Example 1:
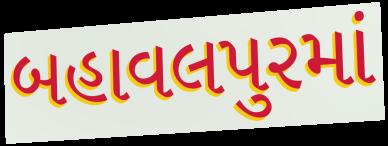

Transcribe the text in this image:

બહાવલપુરમાં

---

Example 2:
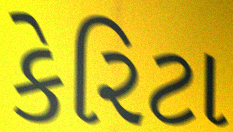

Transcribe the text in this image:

કેરિટા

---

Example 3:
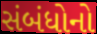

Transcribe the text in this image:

સંબંધોનો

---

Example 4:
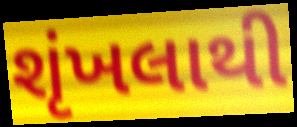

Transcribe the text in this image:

શૃંખલાથી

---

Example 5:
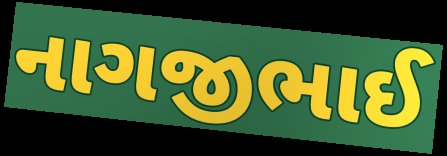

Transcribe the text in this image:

નાગજીભાઈ